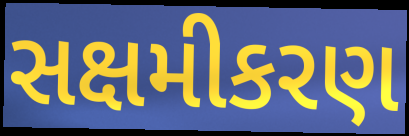
સક્ષમીકરણ